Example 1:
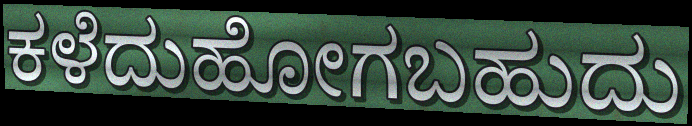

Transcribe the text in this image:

ಕಳೆದುಹೋಗಬಹುದು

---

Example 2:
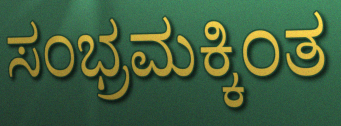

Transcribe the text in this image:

ಸಂಭ್ರಮಕ್ಕಿಂತ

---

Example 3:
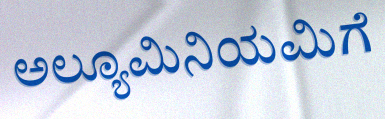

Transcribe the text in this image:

ಅಲ್ಯೂಮಿನಿಯಮಿಗೆ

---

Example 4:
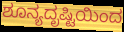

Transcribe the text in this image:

ಶೂನ್ಯದೃಷ್ಟಿಯಿಂದ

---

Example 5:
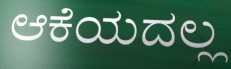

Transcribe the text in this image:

ಆಕೆಯದಲ್ಲ